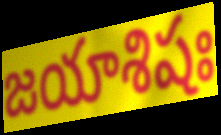
జయాశిషః